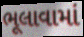
ભૂલાવામાં